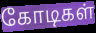
கோடிகள்